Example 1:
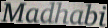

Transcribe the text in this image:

Madhabi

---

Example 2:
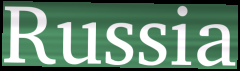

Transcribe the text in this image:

Russia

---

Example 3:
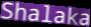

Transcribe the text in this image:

Shalaka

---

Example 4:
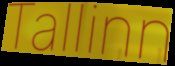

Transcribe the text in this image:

Tallinn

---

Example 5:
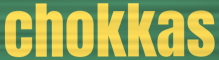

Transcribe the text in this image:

chokkas